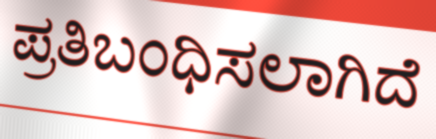
ಪ್ರತಿಬಂಧಿಸಲಾಗಿದೆ